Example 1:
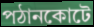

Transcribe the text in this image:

পঠানকোটে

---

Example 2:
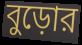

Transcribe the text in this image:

বুড়োর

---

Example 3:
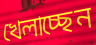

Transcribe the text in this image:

খেলাচ্ছেন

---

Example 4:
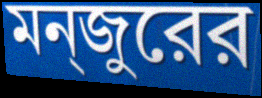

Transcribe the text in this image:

মন্জুরের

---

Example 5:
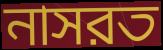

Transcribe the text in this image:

নাসরত